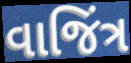
વાજિંત્ર